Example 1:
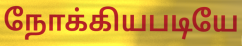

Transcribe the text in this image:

நோக்கியபடியே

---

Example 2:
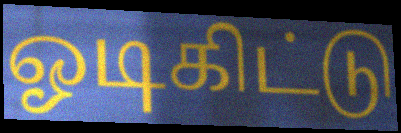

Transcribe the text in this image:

ஓடிகிட்டு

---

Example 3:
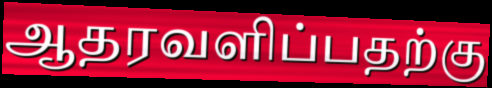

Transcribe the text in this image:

ஆதரவளிப்பதற்கு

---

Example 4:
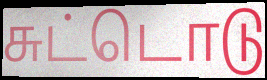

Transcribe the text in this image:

சுட்டொடு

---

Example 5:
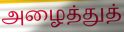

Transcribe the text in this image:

அழைத்துத்